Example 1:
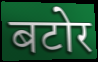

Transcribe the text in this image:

बटोर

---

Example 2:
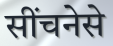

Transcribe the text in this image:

सींचनेसे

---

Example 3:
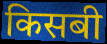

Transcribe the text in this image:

किसबी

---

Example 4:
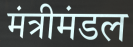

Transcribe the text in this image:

मंत्रीमंडल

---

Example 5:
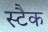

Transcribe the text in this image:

स्‍टैक